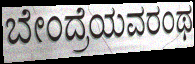
ಬೇಂದ್ರೆಯವರಂಥ